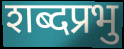
शब्दप्रभु